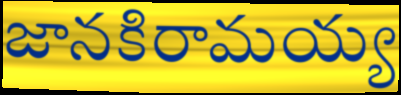
జానకిరామయ్య